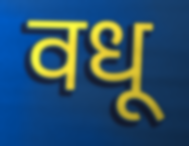
वधू